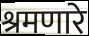
श्रमणारे